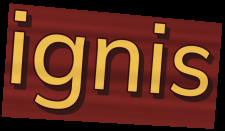
ignis